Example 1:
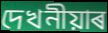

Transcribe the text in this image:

দেখনীয়াৰ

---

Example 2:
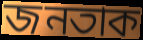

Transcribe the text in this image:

জনতাক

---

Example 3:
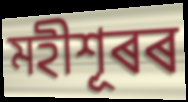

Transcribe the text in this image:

মহীশূৰৰ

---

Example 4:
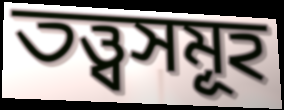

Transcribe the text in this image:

তত্ত্বসমূহ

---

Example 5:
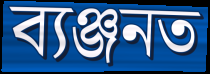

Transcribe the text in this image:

ব্যঞ্জনত